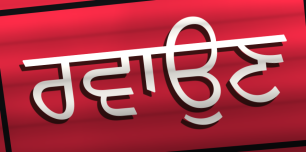
ਰਵਾਉਣ